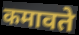
कमावते